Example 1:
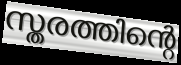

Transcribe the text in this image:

സ്തരത്തിന്റെ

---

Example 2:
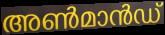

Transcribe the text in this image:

അൺമാൻഡ്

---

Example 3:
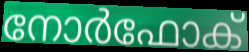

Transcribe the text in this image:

നോർഫോക്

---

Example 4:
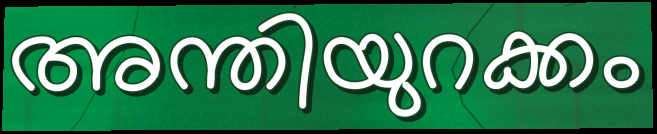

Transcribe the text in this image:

അന്തിയുറക്കം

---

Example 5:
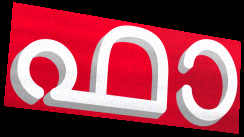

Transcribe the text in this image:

ഫാ